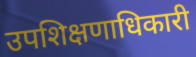
उपशिक्षणाधिकारी